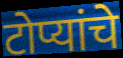
टोप्यांचे